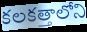
కలకత్తాలోని